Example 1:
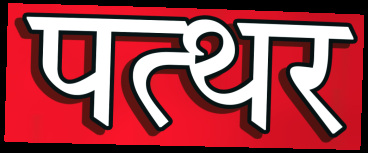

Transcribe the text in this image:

पत्‍थर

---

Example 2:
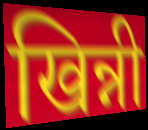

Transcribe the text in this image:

खिन्नी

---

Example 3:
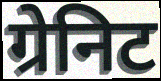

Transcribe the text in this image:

ग्रेनिट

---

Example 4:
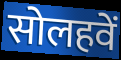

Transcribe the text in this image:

सोलहवें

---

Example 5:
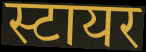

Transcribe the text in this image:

स्टायर